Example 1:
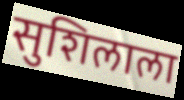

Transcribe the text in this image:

सुशिलाला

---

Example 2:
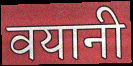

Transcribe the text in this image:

वयानी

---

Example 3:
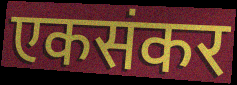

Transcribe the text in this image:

एकसंकर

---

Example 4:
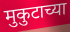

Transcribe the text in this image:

मुकुटाच्या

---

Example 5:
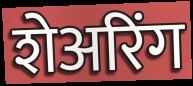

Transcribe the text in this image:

शेअरिंग